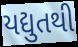
યદ્યુતથી